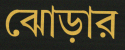
ঝোড়ার